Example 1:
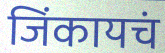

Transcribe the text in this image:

जिंकायचं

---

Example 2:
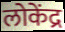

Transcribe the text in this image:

लोकेंद्र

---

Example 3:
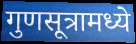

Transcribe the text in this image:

गुणसूत्रामध्ये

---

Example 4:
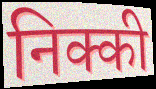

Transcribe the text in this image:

निक्की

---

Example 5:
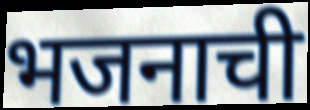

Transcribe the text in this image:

भजनाची